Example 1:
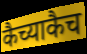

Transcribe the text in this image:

कैच्याकैच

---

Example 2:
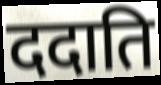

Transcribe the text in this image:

ददाति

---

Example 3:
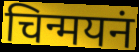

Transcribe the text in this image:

चिन्मयनं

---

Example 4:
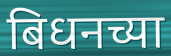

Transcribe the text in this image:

बिधनच्या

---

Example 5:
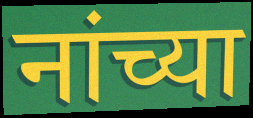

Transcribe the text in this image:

नांच्या